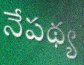
నేపథ్య